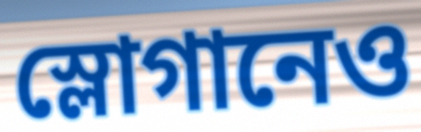
স্লোগানেও